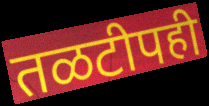
तळटीपही